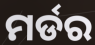
ମର୍ଡର